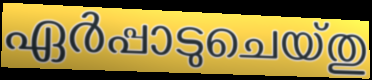
ഏർപ്പാടുചെയ്തു